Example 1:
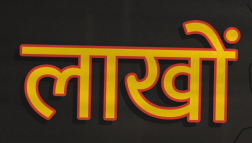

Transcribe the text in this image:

लाखों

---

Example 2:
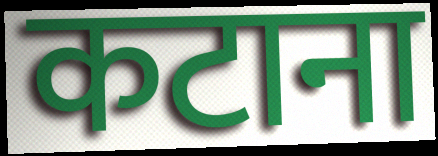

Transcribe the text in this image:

कटाना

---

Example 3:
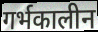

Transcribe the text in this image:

गर्भकालीन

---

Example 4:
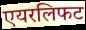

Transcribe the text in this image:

एयरलिफट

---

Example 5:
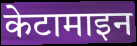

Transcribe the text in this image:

केटामाइन